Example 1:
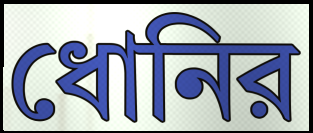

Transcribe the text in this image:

ধোনির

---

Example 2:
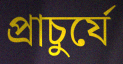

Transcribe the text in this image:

প্রাচুর্যে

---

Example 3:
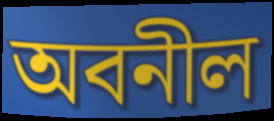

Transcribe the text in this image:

অবনীল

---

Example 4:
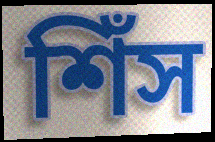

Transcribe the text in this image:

শিঁস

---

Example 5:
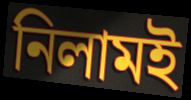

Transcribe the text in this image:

নিলামই